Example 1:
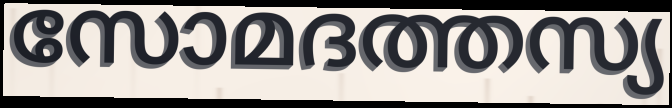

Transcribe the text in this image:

സോമദത്തസ്യ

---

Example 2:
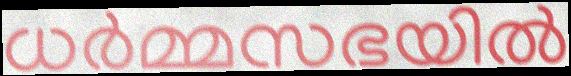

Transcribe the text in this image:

ധർമ്മസഭയിൽ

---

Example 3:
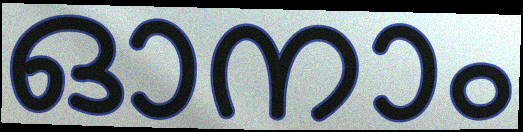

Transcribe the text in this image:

ഓനാം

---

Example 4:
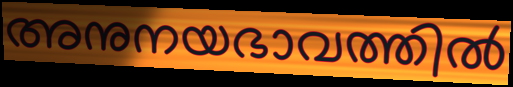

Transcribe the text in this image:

അനുനയഭാവത്തിൽ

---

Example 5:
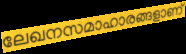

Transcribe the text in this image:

ലേഖനസമാഹാരങ്ങളാണ്